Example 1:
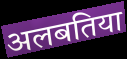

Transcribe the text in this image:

अलबतिया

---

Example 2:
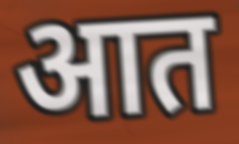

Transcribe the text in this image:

आत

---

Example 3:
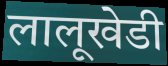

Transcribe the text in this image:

लालूखेडी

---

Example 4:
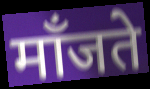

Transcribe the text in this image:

माँजते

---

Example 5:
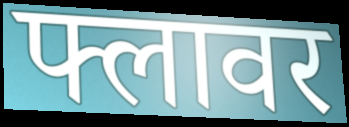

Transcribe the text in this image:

फ्लावर